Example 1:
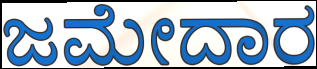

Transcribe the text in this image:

ಜಮೇದಾರ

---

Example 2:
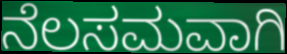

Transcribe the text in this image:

ನೆಲಸಮವಾಗಿ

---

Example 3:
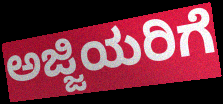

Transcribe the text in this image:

ಅಜ್ಜಿಯರಿಗೆ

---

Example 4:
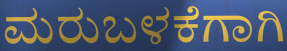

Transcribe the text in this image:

ಮರುಬಳಕೆಗಾಗಿ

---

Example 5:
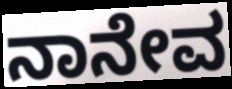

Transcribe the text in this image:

ನಾನೇವ